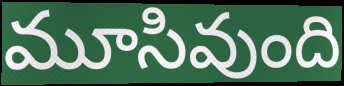
మూసివుంది